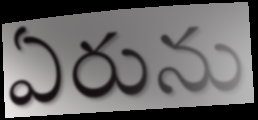
ఏరును